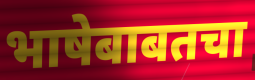
भाषेबाबतचा